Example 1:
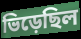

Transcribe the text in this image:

ভিড়েছিল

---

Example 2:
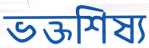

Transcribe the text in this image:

ভক্তশিষ্য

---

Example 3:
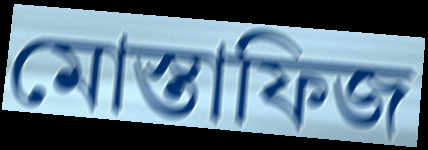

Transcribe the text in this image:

মোস্তাফিজ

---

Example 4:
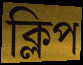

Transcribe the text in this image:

ক্লিপ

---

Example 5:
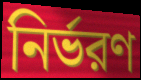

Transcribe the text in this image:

নির্ভরণ